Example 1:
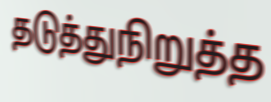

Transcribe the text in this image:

தடுத்துநிறுத்த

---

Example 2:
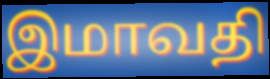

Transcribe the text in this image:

இமாவதி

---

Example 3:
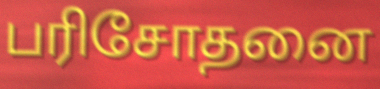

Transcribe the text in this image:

பரிசோதனை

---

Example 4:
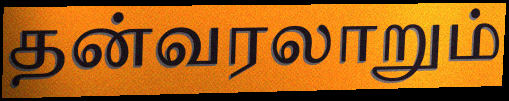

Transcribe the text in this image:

தன்வரலாறும்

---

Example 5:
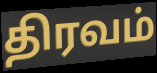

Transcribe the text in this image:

திரவம்